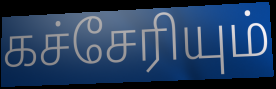
கச்சேரியும்